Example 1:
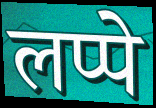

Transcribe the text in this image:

लप्पे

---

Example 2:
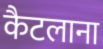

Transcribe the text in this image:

कैटलाना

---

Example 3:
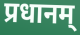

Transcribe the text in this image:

प्रधानम्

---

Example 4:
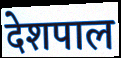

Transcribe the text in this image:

देशपाल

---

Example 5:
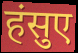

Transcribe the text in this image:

हंसुए